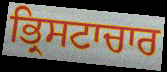
ਭ੍ਰਿਸਟਾਚਾਰ